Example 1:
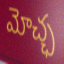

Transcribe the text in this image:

మోచ్ఛ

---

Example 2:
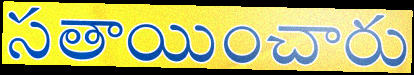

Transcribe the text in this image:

సతాయించారు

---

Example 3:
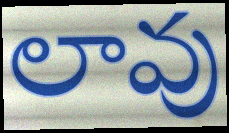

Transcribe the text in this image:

లావు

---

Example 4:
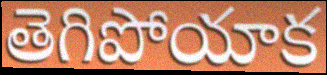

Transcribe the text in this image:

తెగిపోయాక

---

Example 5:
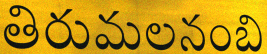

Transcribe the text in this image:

తిరుమలనంబి